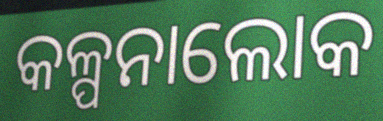
କଳ୍ପନାଲୋକ